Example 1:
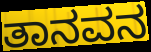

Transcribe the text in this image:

ತಾನವನ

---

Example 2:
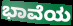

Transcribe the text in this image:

ಭಾವೆಯ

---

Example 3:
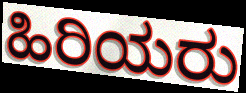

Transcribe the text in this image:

ಹಿರಿಯರು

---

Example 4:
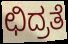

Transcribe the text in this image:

ಛಿದ್ರತೆ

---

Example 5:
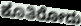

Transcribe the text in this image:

ಕೂತಿರೋದು